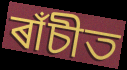
ৰাঁচীত